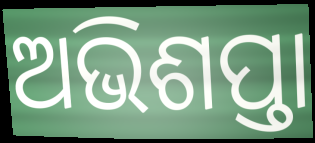
ଅଭିଶପ୍ତା